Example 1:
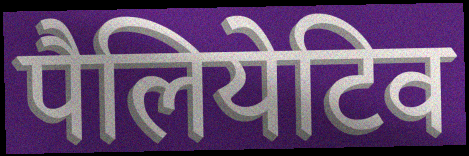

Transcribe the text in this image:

पैलियेटिव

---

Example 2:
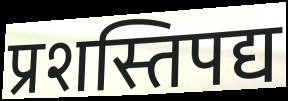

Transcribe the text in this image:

प्रशस्तिपद्य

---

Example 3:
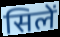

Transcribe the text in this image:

सिलें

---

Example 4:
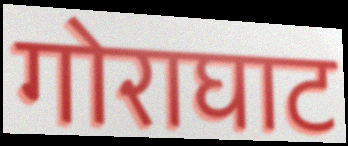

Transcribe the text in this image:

गोराघाट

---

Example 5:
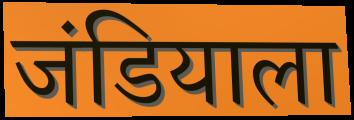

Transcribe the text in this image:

जंडियाला